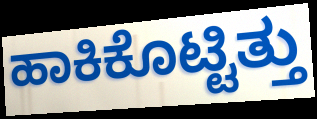
ಹಾಕಿಕೊಟ್ಟಿತ್ತು